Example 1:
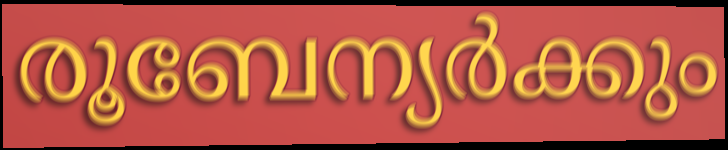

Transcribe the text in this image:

രൂബേന്യർക്കും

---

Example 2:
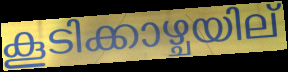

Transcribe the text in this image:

കൂടിക്കാഴ്ചയില്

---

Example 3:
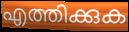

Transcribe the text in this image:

എത്തിക്കുക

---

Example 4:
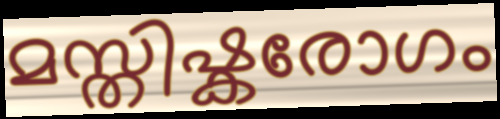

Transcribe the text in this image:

മസ്തിഷ്കരോഗം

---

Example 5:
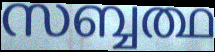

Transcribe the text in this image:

സബ്ബത്ഥ